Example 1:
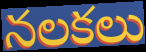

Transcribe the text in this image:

నలకలు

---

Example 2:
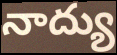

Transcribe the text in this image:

నాద్యు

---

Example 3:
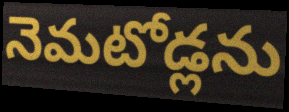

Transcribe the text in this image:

నెమటోడ్లను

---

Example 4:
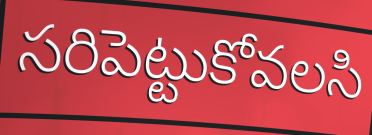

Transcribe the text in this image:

సరిపెట్టుకోవలసి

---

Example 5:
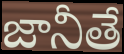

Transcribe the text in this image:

జానీతే